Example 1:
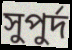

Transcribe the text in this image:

সুপুর্দ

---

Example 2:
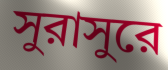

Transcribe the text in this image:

সুরাসুরে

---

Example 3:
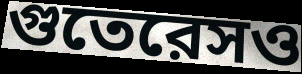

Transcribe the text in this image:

গুতেরেসও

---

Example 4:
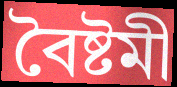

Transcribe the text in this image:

বৈষ্টমী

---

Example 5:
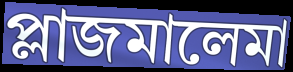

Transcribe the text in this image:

প্লাজমালেমা